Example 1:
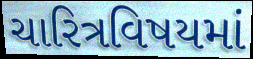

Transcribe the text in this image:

ચારિત્રવિષયમાં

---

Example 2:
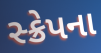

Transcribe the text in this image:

સ્ક્રેપના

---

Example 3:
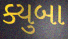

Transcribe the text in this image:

ક્યુબા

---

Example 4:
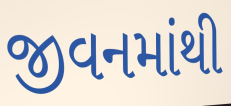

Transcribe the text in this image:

જીવનમાંથી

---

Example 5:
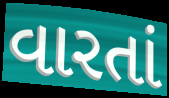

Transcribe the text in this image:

વારતાં